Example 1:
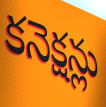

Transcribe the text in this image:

కనెక్షన్లు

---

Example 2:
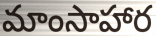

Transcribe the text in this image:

మాంసాహార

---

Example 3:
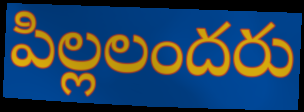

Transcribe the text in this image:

పిల్లలందరు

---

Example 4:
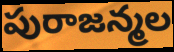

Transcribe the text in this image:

పురాజన్మల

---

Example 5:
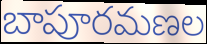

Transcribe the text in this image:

బాపూరమణల